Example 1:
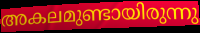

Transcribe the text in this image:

അകലമുണ്ടായിരുന്നു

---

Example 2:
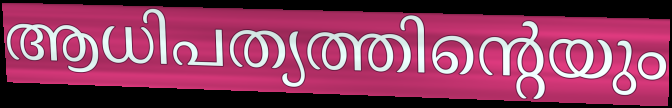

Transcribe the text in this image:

ആധിപത്യത്തിന്റെയും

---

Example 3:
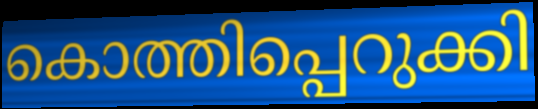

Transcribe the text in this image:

കൊത്തിപ്പെറുക്കി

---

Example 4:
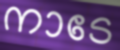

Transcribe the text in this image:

നാടേ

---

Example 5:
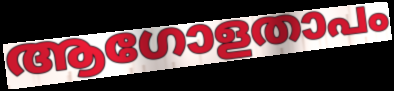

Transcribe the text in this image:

ആഗോളതാപം